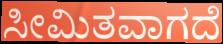
ಸೀಮಿತವಾಗದೆ